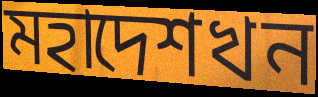
মহাদেশখন